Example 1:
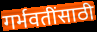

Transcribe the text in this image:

गर्भवतींसाठी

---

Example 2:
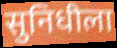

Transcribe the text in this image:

सुनिधीला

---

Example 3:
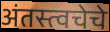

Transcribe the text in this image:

अंतस्त्वचेचे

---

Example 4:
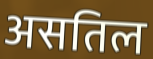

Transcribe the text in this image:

असतिल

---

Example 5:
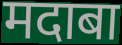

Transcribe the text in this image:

मदाबा